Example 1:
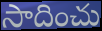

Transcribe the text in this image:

సాదించు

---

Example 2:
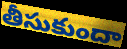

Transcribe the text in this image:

తీసుకుందా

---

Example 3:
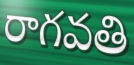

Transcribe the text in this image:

రాగవతి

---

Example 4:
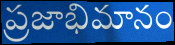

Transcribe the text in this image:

ప్రజాభిమానం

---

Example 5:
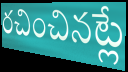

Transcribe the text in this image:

రచించినట్లే